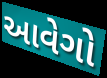
આવેગો